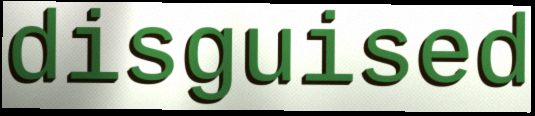
disguised